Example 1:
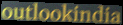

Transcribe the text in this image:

outlookindia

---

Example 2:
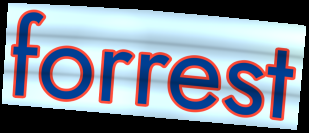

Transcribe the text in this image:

forrest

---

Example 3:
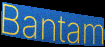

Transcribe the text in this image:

Bantam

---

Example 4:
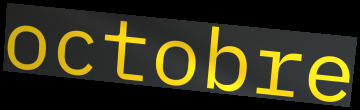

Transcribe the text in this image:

octobre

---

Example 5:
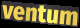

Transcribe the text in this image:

ventum